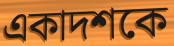
একাদশকে